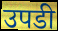
उपडी